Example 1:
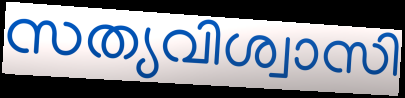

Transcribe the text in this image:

സത്യവിശ്വാസി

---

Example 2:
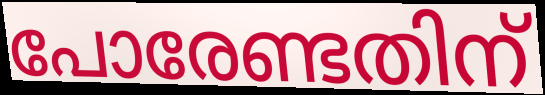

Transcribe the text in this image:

പോരേണ്ടതിന്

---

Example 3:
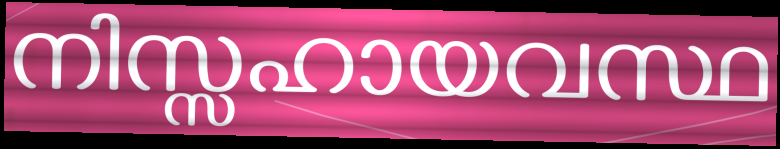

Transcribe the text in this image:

നിസ്സഹായവസ്ഥ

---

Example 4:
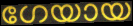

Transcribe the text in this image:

ഗേയായ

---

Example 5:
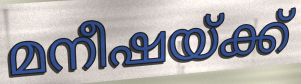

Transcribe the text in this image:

മനീഷയ്ക്ക്